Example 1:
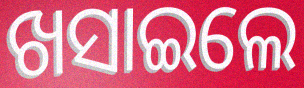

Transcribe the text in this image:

ଖସାଇଲେ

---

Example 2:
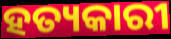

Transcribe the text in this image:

ହତ୍ୟକାରୀ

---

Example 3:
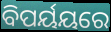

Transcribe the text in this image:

ବିପର୍ୟୟରେ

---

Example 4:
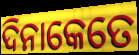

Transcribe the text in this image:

ଦିନାକେତେ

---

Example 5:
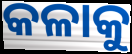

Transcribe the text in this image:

କଳାକୁ